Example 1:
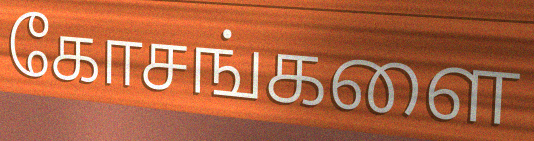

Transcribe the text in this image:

கோசங்களை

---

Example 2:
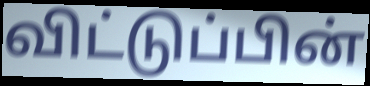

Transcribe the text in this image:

விட்டுப்பின்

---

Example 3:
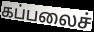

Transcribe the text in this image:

கப்பலைச்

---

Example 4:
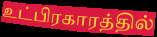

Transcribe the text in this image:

உட்பிரகாரத்தில்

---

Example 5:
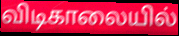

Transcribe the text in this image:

விடிகாலையில்